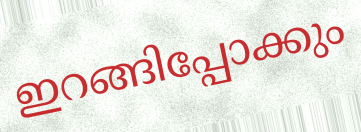
ഇറങ്ങിപ്പോക്കും